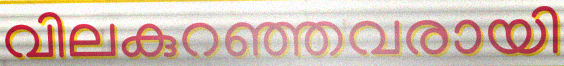
വിലകുറഞ്ഞവരായി